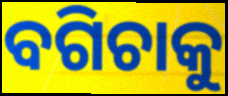
ବଗିଚାକୁ